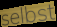
selbst